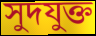
সুদযুক্ত